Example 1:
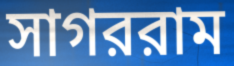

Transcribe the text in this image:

সাগররাম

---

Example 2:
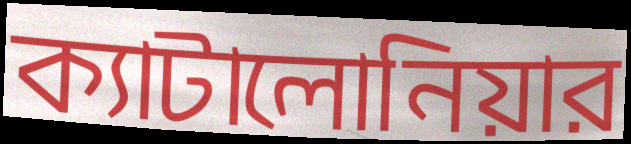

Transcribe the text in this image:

ক্যাটালোনিয়ার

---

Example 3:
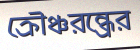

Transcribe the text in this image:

ক্রৌঞ্চরন্ধ্রের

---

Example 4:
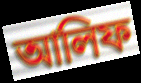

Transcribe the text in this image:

আলিফ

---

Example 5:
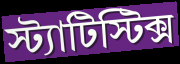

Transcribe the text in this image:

স্ট্যাটিস্টিক্স